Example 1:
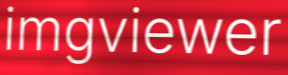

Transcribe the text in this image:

imgviewer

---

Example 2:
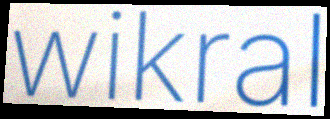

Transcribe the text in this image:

wikral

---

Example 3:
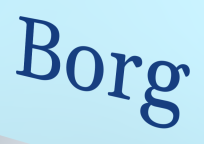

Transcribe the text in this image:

Borg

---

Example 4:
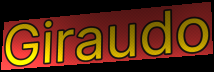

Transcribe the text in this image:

Giraudo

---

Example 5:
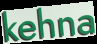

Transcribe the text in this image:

kehna